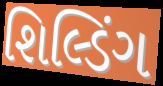
શિલ્ડિંગ